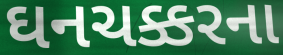
ઘનચક્કરના